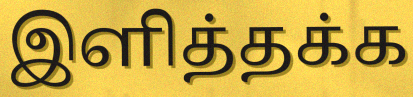
இளித்தக்க